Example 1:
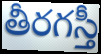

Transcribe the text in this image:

తీరగస్తీ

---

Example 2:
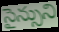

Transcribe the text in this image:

సైన్సుని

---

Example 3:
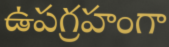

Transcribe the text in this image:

ఉపగ్రహంగా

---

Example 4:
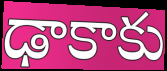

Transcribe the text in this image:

ఢాకాకు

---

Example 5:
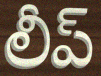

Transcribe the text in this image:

లీప్